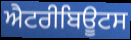
ਐਟਰੀਬਿਊਟਸ